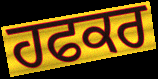
ਹਫਕਰ